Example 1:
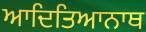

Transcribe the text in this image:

ਆਦਿਤਿਆਨਾਥ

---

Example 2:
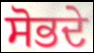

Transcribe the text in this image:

ਸੋਭਦੇ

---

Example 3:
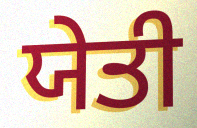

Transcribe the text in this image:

ਯੇਤੀ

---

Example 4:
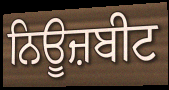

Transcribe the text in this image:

ਨਿਊਜ਼ਬੀਟ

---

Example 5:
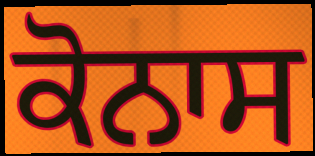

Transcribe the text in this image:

ਕੋਨਾਸ